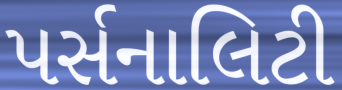
પર્સનાલિટી